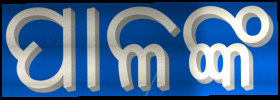
ପାଳଙ୍କ